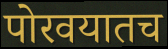
पोरवयातच